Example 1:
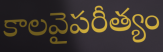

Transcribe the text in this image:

కాలవైపరీత్యం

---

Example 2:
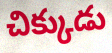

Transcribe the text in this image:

చిక్కుడు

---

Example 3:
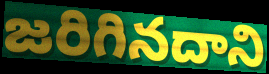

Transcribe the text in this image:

జరిగినదాని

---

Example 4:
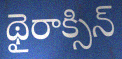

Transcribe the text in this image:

థైరాక్సిన్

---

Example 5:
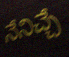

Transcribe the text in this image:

నేనిచ్చే